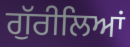
ਗੁੱਰੀਲਿਆਂ